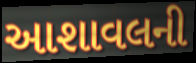
આશાવલની